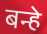
बन्हे